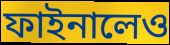
ফাইনালেও